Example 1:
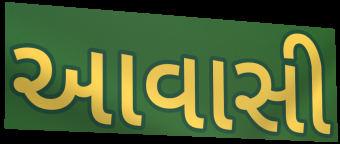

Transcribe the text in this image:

આવાસી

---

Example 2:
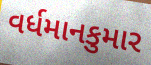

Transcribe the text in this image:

વર્ધમાનકુમાર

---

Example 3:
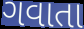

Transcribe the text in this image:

ગવાતા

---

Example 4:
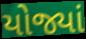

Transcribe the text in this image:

યોજ્યાં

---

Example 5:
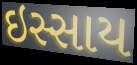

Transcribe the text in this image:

ઇસ્સાય